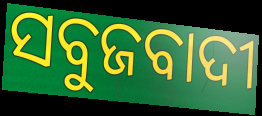
ସବୁଜବାଦୀ